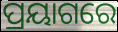
ପ୍ରୟାଗରେ